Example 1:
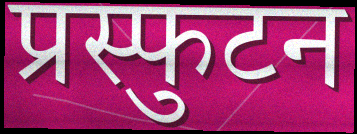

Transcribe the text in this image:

प्रस्फुटन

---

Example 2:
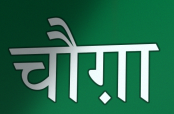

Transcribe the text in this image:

चौग़ा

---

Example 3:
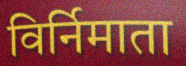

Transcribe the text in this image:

विर्निमाता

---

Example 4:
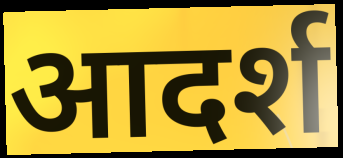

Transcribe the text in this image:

आदर्श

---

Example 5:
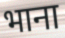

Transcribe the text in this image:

भाना